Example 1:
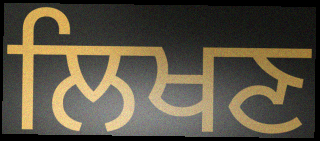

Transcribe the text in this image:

ਲਿਖਣ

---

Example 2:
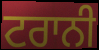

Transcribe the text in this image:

ਟਰਾਨੀ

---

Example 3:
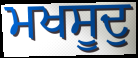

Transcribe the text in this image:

ਮਖਸੂਦੁ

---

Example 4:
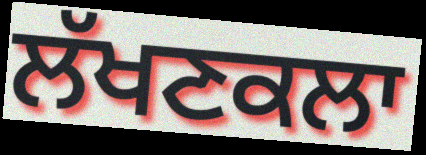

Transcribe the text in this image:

ਲੱਖਣਕਲਾ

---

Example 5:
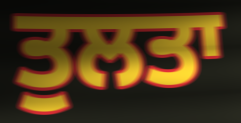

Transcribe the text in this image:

ਤੁਲਤਾ